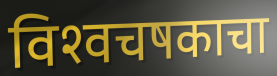
विश्वचषकाचा